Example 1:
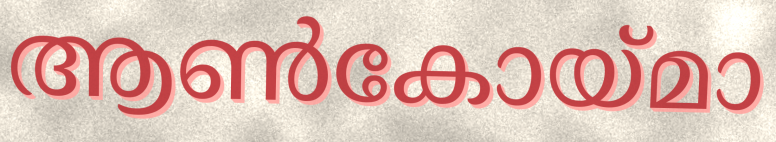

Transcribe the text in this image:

ആൺകോയ്മാ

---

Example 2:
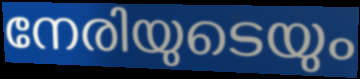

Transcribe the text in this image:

നേരിയുടെയും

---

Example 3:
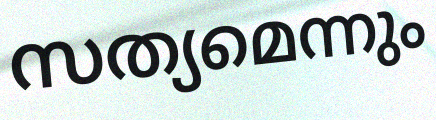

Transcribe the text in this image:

സത്യമെന്നും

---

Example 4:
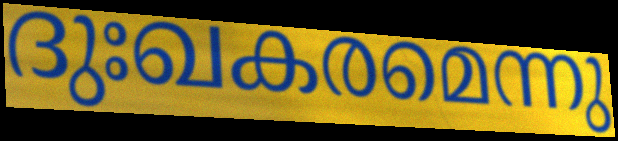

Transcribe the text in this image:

ദുഃഖകരമെന്നു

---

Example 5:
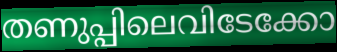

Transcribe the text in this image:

തണുപ്പിലെവിടേക്കോ